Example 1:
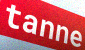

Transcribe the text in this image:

tanne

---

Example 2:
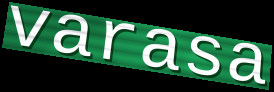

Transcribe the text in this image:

varasa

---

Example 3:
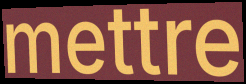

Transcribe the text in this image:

mettre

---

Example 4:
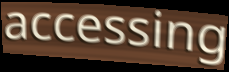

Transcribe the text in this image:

accessing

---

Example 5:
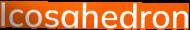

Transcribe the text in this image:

Icosahedron